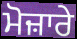
ਮੋਜ਼ਾਰੇ